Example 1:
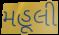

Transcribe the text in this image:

મહૂલી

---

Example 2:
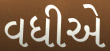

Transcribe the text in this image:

વધીએ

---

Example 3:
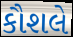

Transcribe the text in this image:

કૌશલે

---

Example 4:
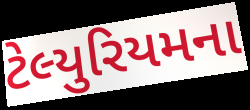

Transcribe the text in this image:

ટેલ્યુરિયમના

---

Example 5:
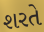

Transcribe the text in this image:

શરતે